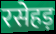
रसेहड़